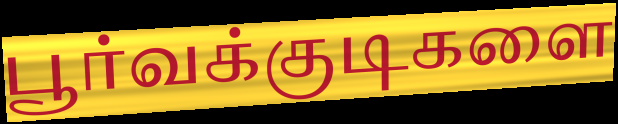
பூர்வக்குடிகளை